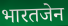
भारतजेन